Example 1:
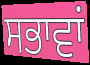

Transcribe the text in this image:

ਸਭਾਵਾਂ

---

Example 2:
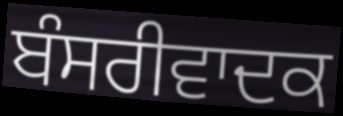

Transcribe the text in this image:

ਬੰਸਰੀਵਾਦਕ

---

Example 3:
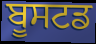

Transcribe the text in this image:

ਬੂਸਟਡ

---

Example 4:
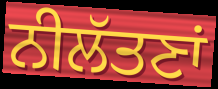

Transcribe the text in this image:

ਨੀਲੱਤਣਾਂ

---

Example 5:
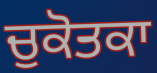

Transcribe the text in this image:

ਚੁਕੋਤਕਾ